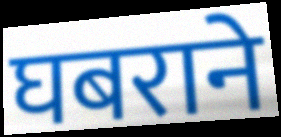
घबराने